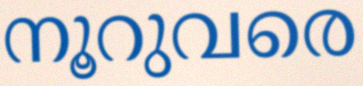
നൂറുവരെ